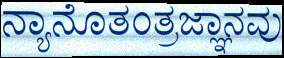
ನ್ಯಾನೊತಂತ್ರಜ್ಞಾನವು